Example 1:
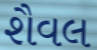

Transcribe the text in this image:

શૈવલ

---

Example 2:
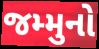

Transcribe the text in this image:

જમ્મુનો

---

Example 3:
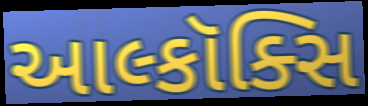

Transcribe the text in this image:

આલ્કૉક્સિ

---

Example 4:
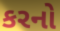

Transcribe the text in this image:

કરનો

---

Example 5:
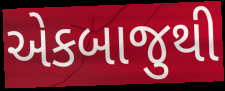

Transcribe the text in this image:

એકબાજુથી